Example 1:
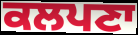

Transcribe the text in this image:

ਕਲਪਣਾ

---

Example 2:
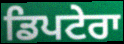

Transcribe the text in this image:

ਡਿਪਟੇਰਾ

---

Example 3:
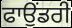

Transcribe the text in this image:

ਫਾਉਂਡਰੀ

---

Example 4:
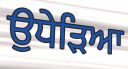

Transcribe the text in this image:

ਉਧੇੜਿਆ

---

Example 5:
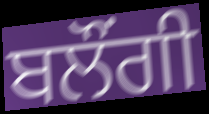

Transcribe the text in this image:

ਬਲੌਂਗੀ